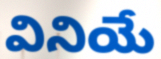
వినియే